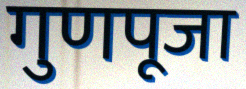
गुणपूजा